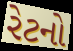
રેટનો